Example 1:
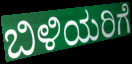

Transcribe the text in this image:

ಬಿಳಿಯರಿಗೆ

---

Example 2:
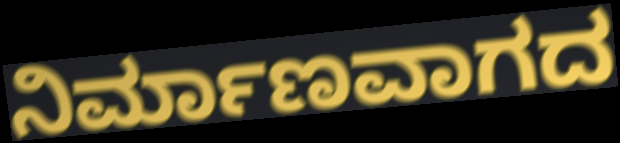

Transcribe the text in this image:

ನಿರ್ಮಾಣವಾಗದ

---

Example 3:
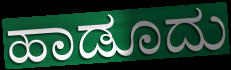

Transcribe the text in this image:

ಹಾಡೂದು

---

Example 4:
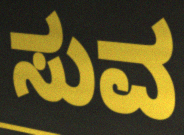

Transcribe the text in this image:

ಸುವ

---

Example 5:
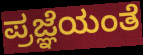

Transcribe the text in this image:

ಪ್ರಜ್ಞೆಯಂತೆ